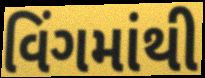
વિંગમાંથી